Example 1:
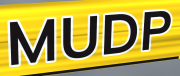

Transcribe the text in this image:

MUDP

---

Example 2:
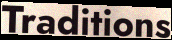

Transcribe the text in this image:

Traditions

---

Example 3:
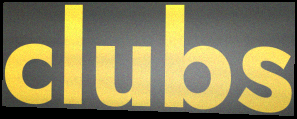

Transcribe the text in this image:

clubs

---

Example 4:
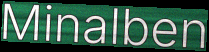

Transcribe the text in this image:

Minalben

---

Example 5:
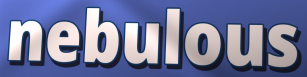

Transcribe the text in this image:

nebulous